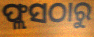
ଫ୍ଲସଠାରୁ